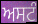
ਅਸਟੰ